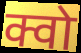
क्वो